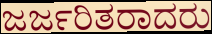
ಜರ್ಜರಿತರಾದರು